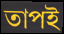
তাপই